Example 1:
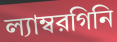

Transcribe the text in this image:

ল্যাম্বরগিনি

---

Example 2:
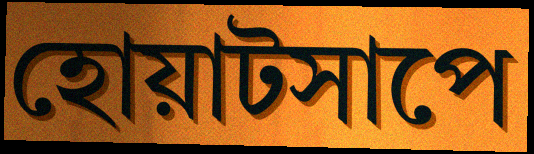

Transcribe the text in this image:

হোয়াটসাপে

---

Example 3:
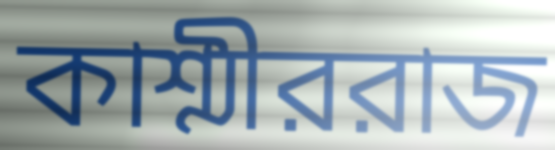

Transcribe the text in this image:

কাশ্মীররাজ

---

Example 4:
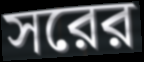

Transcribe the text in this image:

সরের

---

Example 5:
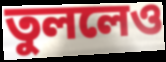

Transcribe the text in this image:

তুললেও